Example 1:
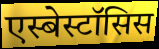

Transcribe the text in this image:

एस्बेस्टॉसिस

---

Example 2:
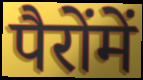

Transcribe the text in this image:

पैरोंमें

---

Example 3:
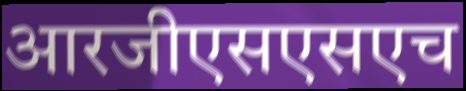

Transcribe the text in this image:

आरजीएसएसएच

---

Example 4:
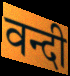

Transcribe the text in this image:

वन्दी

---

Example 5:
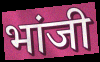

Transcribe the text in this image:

भांजी